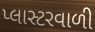
પ્લાસ્ટરવાળી